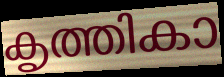
കൃത്തികാ